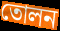
তোলন